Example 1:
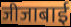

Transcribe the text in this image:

जीजाबाई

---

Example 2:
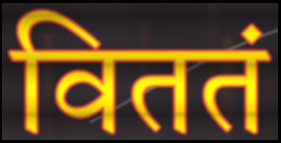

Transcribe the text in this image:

विततं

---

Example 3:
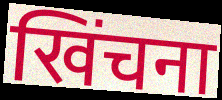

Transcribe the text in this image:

खिंचना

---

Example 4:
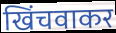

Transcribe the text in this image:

खिंचवाकर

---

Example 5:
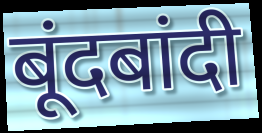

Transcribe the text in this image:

बूंदबांदी